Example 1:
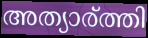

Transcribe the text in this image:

അത്യാര്ത്തി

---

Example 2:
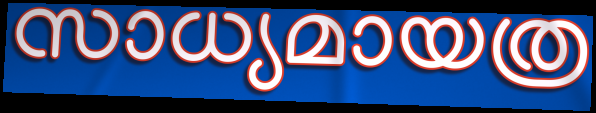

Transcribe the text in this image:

സാധ്യമായത്ര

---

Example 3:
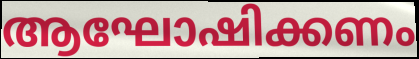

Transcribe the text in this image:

ആഘോഷിക്കണം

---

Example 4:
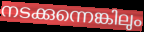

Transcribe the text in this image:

നടക്കുന്നെങ്കിലും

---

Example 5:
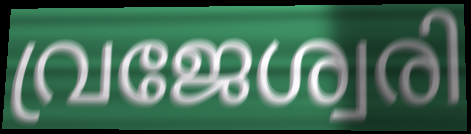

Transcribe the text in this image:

വ്രജേശ്വരി